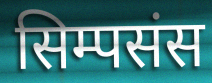
सिम्पसंस